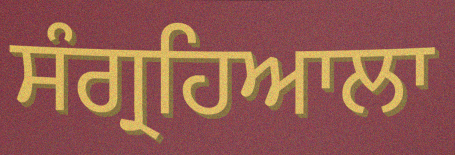
ਸੰਗ੍ਰਹਿਆਲਾ